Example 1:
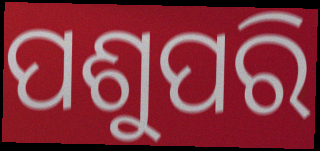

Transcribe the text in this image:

ପଶୁପରି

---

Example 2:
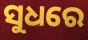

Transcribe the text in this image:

ସୁଧରେ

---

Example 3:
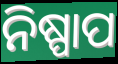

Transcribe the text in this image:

ନିଷ୍ପାପ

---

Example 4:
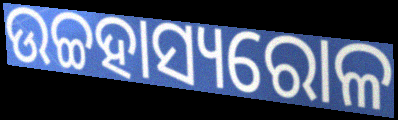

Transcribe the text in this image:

ଉଚ୍ଚହାସ୍ୟରୋଳ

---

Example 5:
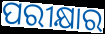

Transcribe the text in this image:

ପରୀକ୍ଷାର